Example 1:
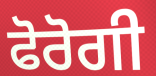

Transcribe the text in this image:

ਫੋਰੋਗੀ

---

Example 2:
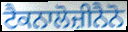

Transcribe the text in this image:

ਟੈਕਨਾਲੋਜ਼ੀਨੈਨੋ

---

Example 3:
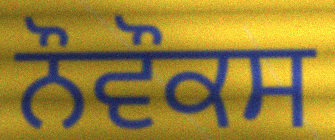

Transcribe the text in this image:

ਨੌਵੌਕਸ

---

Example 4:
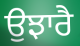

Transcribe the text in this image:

ਉਝਾਰੈ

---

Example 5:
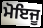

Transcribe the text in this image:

ਮੋਇਜੂ